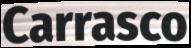
Carrasco